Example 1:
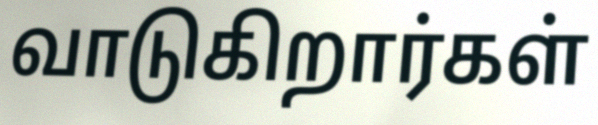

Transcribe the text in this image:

வாடுகிறார்கள்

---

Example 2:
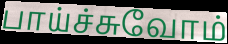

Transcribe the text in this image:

பாய்ச்சுவோம்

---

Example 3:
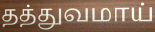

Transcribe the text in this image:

தத்துவமாய்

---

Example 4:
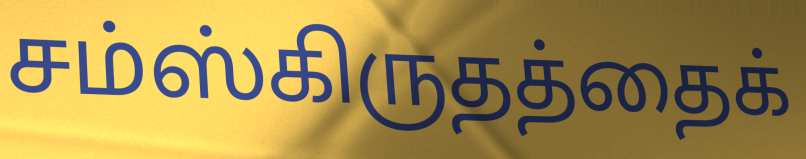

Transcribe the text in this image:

சம்ஸ்கிருதத்தைக்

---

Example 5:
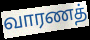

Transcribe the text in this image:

வாரணத்